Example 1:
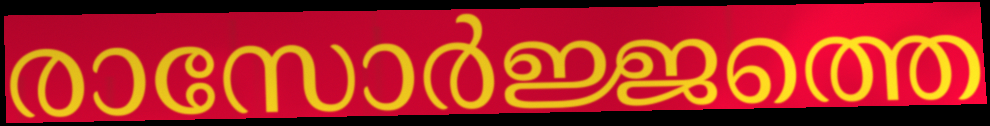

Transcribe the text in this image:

രാസോർജ്ജത്തെ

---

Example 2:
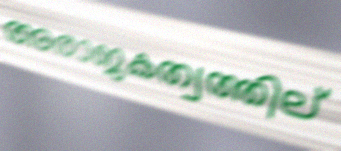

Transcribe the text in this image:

അരാജകത്വത്തില്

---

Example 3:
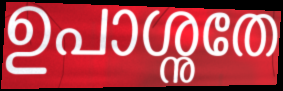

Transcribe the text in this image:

ഉപാശ്നുതേ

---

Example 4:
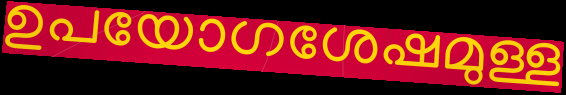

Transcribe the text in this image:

ഉപയോഗശേഷമുള്ള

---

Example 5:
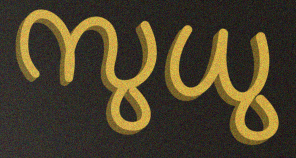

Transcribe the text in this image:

സുധു